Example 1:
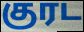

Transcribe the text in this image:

குரட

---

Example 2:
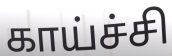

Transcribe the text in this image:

காய்ச்சி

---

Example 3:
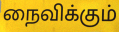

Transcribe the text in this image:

நைவிக்கும்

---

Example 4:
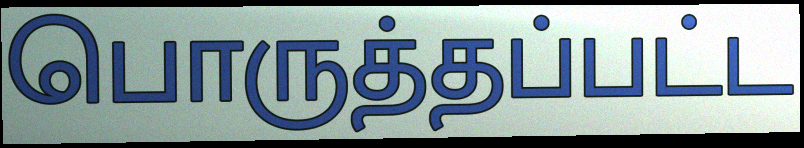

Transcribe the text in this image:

பொருத்தப்பட்ட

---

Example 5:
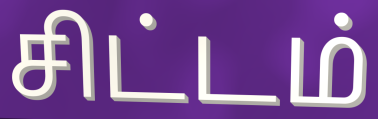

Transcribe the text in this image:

சிட்டம்